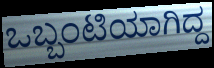
ಒಬ್ಬಂಟಿಯಾಗಿದ್ದ